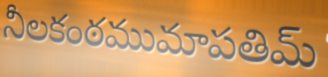
నీలకంఠముమాపతిమ్